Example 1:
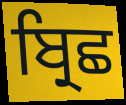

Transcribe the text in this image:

ਬ੍ਰਿਛ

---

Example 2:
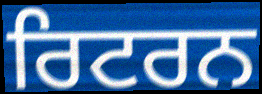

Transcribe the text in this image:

ਰਿਟਰਨ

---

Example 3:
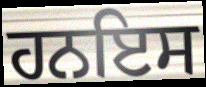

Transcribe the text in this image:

ਹਨਇਸ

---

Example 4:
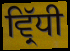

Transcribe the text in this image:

ਵ੍ਰਿੱਧੀ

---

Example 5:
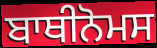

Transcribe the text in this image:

ਬਾਥੀਨੋਮਸ